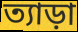
ত্যাড়া